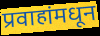
प्रवाहांमधून